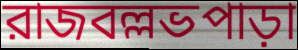
রাজবল্লভপাড়া